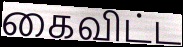
கைவிட்ட